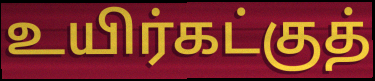
உயிர்கட்குத்